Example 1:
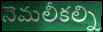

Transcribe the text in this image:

నెమలీకల్ని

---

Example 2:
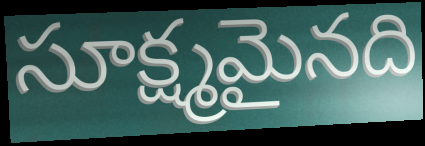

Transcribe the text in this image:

సూక్ష్మమైనది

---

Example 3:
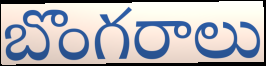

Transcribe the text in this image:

బొంగరాలు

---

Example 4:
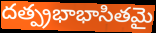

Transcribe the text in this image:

దత్ప్రభాభాసితమై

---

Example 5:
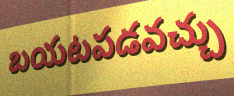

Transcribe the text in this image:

బయటపడవచ్చు